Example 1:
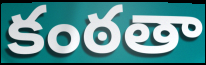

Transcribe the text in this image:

కంఠతా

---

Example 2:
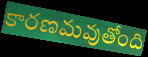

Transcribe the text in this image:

కారణమవుతోంది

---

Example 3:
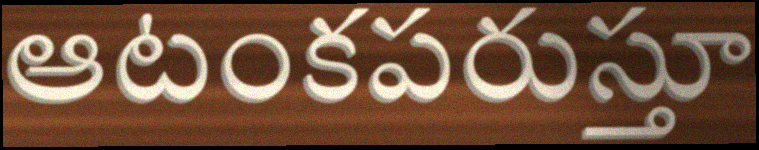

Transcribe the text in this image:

ఆటంకపరుస్తూ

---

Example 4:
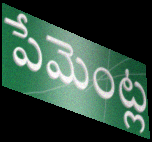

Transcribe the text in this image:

పేమెంట్ల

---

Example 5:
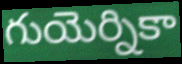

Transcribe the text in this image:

గుయెర్నికా